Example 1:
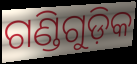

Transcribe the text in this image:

ଗଣ୍ଡିଗୁଡ଼ିକ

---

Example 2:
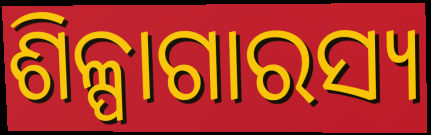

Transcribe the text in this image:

ଶିଳ୍ପାଗାରସ୍ୟ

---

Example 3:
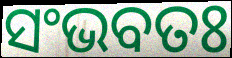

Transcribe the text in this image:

ସଂଭବତଃ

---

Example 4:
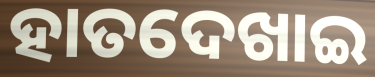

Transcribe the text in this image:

ହାତଦେଖାଇ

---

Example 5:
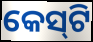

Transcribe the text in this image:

କେସ୍‌ଟି